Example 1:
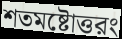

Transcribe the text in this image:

শতমষ্টোত্তরং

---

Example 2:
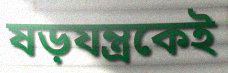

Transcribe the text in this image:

ষড়যন্ত্রকেই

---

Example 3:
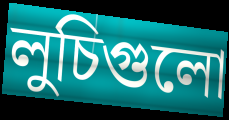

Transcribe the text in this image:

লুচিগুলো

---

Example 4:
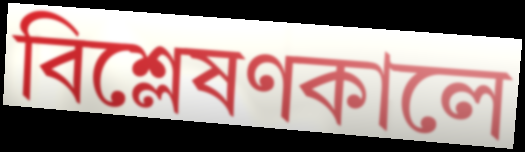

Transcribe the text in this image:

বিশ্লেষণকালে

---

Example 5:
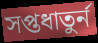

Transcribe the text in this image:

সপ্তধাতুর্ন